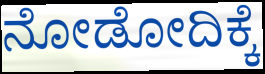
ನೋಡೋದಿಕ್ಕೆ